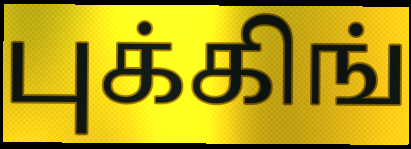
புக்கிங்